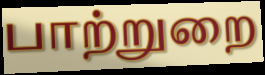
பாற்றுறை